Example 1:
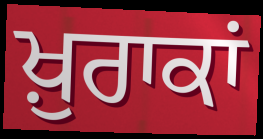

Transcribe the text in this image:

ਖ਼ੁਰਾਕਾਂ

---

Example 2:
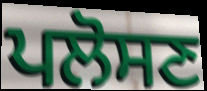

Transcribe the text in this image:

ਪਲੋਸਣ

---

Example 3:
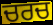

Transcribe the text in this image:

ਚਰਚ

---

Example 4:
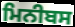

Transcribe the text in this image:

ਮਿਨੀਬਸ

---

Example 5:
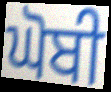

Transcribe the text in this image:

ਘੋਬੀ